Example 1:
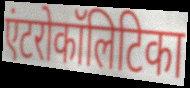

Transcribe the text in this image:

एंटरोकॉलिटिका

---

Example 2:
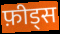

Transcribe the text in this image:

फ़ीड्स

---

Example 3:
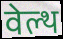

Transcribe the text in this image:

वेल्‍थ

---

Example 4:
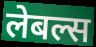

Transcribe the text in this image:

लेबल्स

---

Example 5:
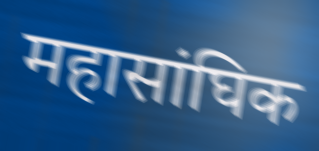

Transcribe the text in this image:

महासांघिक